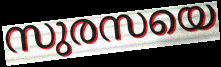
സുരസയെ